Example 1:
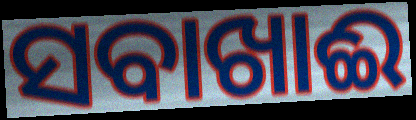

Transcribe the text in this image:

ସବାଖାଈ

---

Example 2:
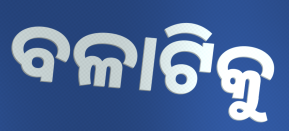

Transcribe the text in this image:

ବଳାଟିକୁ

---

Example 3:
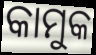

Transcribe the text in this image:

କାମୁକ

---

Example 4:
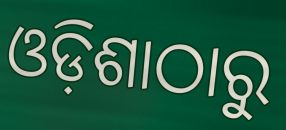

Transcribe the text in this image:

ଓଡ଼ିଶାଠାରୁ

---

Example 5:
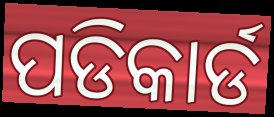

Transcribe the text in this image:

ପଡିକାର୍ଡ